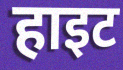
हाइट